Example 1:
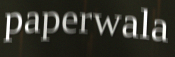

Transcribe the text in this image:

paperwala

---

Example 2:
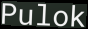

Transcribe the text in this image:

Pulok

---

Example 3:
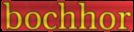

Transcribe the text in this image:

bochhor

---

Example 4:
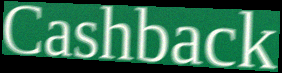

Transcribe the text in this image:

Cashback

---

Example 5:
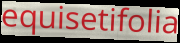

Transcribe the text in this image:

equisetifolia